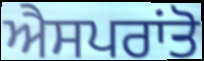
ਐਸਪਰਾਂਤੋ